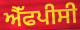
ਐੱਫਪੀਸੀ